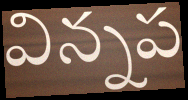
విన్నప